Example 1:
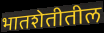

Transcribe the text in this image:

भातशेतीतील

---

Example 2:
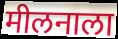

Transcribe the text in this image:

मीलनाला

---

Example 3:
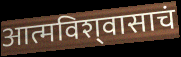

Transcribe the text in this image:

आत्मविश्वासाचं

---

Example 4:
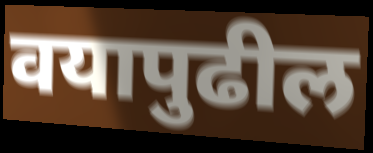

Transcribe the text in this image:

वयापुढील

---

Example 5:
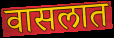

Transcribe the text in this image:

वासलात